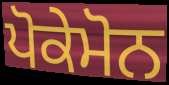
ਪੋਕੇਮੋਨ